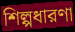
শিল্পধারণা